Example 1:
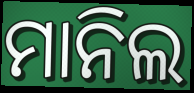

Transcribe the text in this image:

ମାନିଲ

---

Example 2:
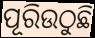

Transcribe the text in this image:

ପୂରିଉଠୁଛି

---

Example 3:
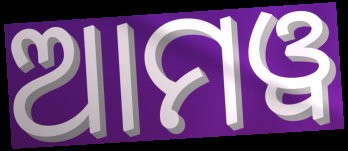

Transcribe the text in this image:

ଆମୱ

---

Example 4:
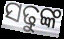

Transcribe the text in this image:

ସଢୁଙ୍କ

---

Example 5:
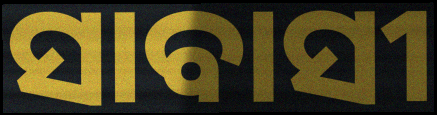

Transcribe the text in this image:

ସାବାସୀ